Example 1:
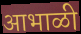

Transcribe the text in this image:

आभाळी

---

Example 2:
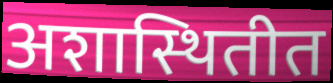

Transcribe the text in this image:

अशास्थितीत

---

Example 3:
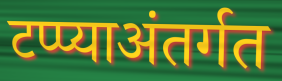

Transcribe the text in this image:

टप्प्याअंतर्गत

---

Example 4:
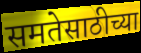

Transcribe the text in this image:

समतेसाठीच्या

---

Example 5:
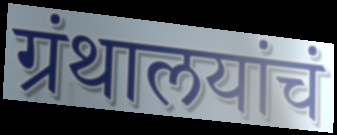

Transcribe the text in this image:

ग्रंथालयांचं